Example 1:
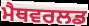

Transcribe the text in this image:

ਮੈਥਵਰਲਡ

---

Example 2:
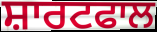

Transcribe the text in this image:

ਸ਼ਾਰਟਫਾਲ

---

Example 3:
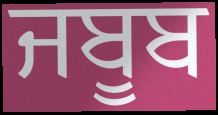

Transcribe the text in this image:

ਜਬੂਬ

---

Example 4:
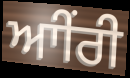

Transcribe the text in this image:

ਆੀਂਰੀ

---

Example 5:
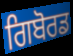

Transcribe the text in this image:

ਗਿਬੋਰਡ